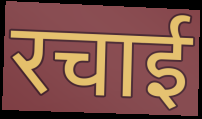
रचाई